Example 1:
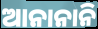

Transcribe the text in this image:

ଆନାନାନି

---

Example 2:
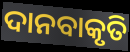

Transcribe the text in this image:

ଦାନବାକୃତି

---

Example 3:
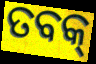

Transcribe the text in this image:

ତବକ୍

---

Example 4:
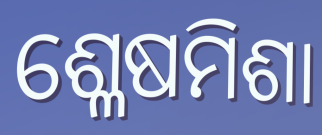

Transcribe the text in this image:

ଶ୍ଳେଷମିଶା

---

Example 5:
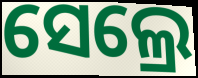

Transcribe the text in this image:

ସେଲ୍ରେ